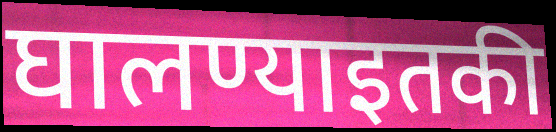
घालण्याइतकी